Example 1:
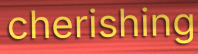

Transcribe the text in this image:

cherishing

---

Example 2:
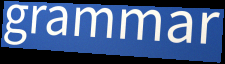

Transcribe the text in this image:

grammar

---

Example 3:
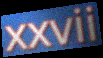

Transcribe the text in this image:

xxvii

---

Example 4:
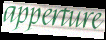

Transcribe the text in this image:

apperture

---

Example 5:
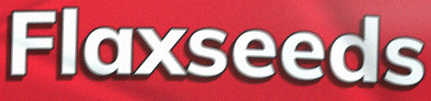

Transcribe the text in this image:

Flaxseeds